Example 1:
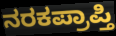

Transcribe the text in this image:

ನರಕಪ್ರಾಪ್ತಿ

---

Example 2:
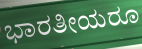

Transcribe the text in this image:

ಭಾರತೀಯರೂ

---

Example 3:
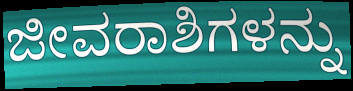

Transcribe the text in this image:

ಜೀವರಾಶಿಗಳನ್ನು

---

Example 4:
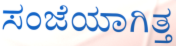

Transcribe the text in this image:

ಸಂಜೆಯಾಗಿತ್ತ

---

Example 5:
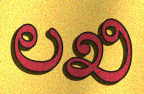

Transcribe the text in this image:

ಲಖಿ